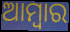
ଆମ୍ବାର